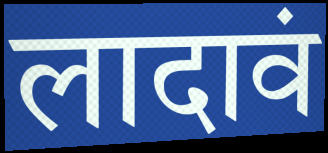
लादावं